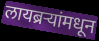
लायब्रऱ्यांमधून